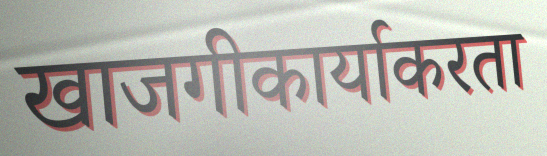
खाजगीकार्याकरता